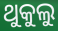
ଥୁକୁଲୁ